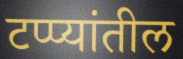
टप्प्यांतील